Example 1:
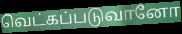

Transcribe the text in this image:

வெட்கப்படுவானோ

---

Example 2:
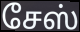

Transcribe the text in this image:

சேஸ்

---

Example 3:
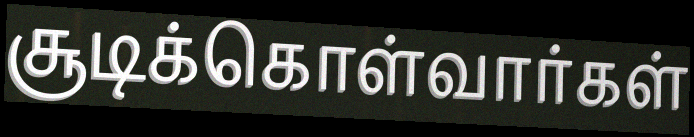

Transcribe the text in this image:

சூடிக்கொள்வார்கள்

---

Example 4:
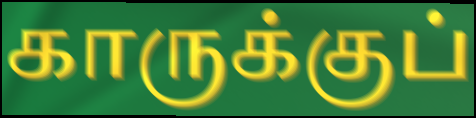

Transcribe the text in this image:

காருக்குப்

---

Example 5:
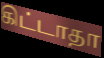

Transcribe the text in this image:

கிட்டாதா